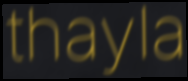
thayla